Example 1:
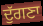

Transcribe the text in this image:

ਦੁੱਗਣਾ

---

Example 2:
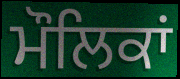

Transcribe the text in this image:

ਮੌਲਿਕਾਂ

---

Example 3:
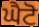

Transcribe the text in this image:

ਘੈਟੋ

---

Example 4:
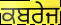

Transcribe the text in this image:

ਕਬਰੇਜ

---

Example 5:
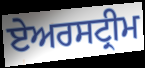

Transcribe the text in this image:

ਏਅਰਸਟ੍ਰੀਮ